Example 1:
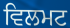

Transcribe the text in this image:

ਵਿਲਮਟ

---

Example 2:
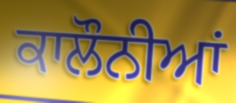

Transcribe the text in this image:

ਕਾਲੌਨੀਆਂ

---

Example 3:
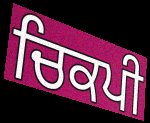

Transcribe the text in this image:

ਚਿਕਪੀ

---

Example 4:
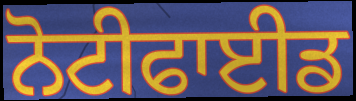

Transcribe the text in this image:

ਨੋਟੀਫਾਈਡ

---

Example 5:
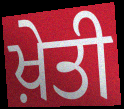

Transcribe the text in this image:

ਖ਼ੇਤੀ